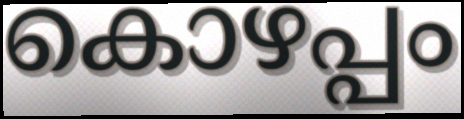
കൊഴപ്പം